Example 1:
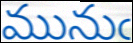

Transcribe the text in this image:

మునుఁ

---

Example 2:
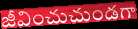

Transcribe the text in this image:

జీవించుచుండగా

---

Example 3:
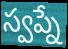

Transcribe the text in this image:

స్వప్నే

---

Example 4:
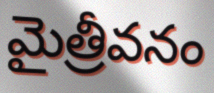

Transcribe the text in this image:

మైత్రీవనం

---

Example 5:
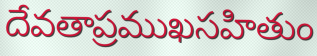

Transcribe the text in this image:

దేవతాప్రముఖసహితుం